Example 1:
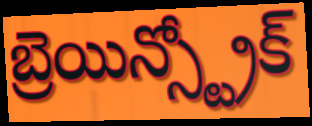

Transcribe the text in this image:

బ్రెయిన్స్ట్రోక్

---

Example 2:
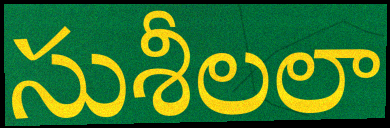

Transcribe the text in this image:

సుశీలలా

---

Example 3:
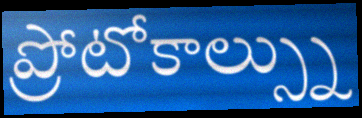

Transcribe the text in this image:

ప్రోటోకాల్స్ను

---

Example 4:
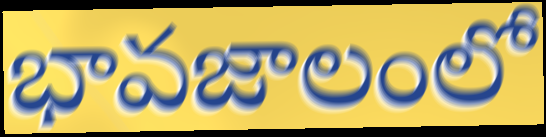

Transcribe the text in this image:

భావజాలంలో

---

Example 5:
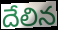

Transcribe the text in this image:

దేలిన